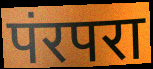
पंरपरा